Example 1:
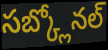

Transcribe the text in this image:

సబ్క్లోనల్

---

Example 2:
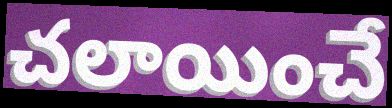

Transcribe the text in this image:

చలాయించే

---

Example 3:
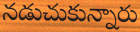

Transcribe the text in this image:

నడుచుకున్నారు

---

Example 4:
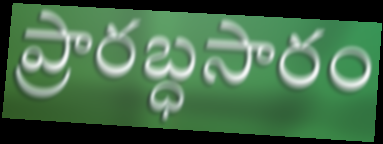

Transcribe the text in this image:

ప్రారబ్ధసారం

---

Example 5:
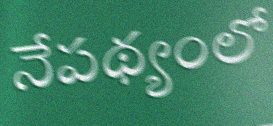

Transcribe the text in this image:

నేపథ్యంలో